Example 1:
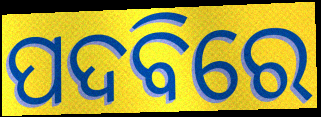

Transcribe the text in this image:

ପଦବିରେ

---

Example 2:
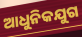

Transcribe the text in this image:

ଆଧୁନିକଯୁଗ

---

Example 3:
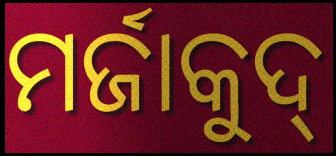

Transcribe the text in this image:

ମର୍ଜାକୁଦ୍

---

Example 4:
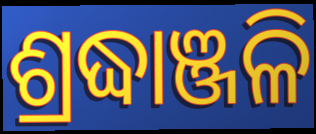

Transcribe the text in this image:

ଶ୍ରଦ୍ଧାଞ୍ଜଳି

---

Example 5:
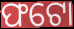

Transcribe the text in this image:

ଫଟୋ